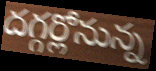
దగ్గర్లోనున్న